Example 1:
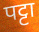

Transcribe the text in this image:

पट्टा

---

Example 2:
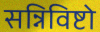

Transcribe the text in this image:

सन्निविष्टो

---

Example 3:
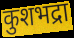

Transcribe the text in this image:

कुशभद्रा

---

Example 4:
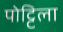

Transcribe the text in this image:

पोट्टिला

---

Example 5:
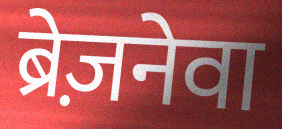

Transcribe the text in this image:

ब्रेज़नेवा